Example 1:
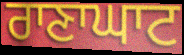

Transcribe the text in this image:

ਰਾਣਾਘਾਟ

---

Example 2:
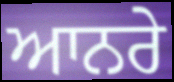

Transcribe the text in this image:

ਆਨਰੇ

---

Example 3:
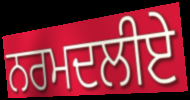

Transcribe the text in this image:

ਨਰਮਦਲੀਏ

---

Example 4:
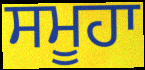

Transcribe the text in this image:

ਸਮੂਹਾ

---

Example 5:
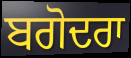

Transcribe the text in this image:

ਬਗੋਦਰਾ